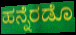
ಹನ್ನೆರಡೊ